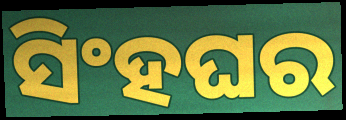
ସିଂହଘର